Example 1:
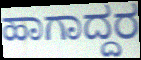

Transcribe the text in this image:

ಹಾಗಾದ್ದರ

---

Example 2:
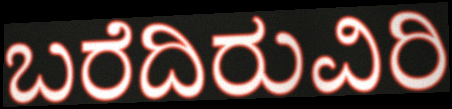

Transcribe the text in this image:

ಬರೆದಿರುವಿರಿ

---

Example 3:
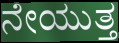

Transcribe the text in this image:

ನೇಯುತ್ತ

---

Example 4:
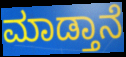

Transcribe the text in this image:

ಮಾಡ್ತಾನೆ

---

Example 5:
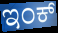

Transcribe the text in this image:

ಇಂಕ್